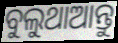
ବୁଲୁଥାଆନ୍ତୁ